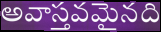
అవాస్తవమైనది